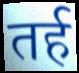
तर्ह